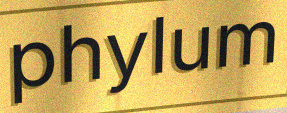
phylum